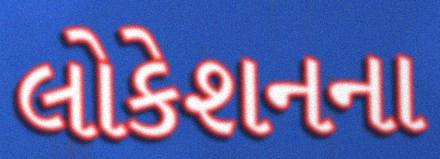
લોકેશનના